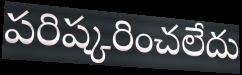
పరిష్కరించలేదు